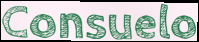
Consuelo